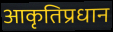
आकृतिप्रधान